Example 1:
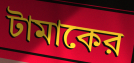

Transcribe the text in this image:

টামাকের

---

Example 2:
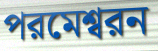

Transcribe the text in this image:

পরমেশ্বরন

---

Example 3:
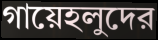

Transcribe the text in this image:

গায়েহলুদের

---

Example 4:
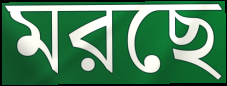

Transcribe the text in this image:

মরছে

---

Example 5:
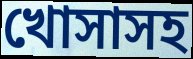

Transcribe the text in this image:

খোসাসহ